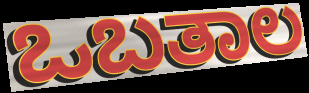
ಒಬತಾಲ